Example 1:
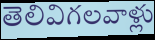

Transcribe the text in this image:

తెలివిగలవాళ్లు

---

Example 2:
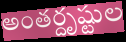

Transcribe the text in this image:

అంతర్దృష్టుల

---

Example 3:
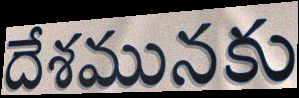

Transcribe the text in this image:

దేశమునకు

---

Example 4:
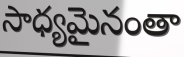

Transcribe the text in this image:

సాధ్యమైనంతా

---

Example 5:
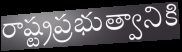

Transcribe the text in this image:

రాష్ట్రప్రభుత్వానికి